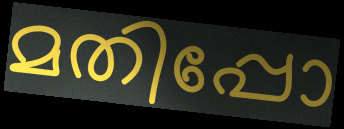
മതിപ്പോ